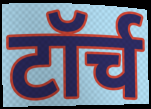
टॉर्च